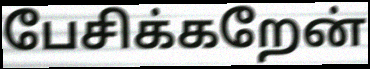
பேசிக்கறேன்